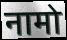
नामो